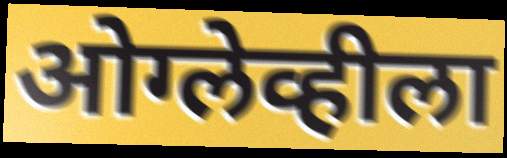
ओग्लेव्हीला